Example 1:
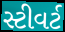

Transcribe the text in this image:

સ્ટીવર્ટ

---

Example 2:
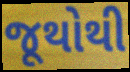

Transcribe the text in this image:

જૂથોથી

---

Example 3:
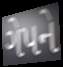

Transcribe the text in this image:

ગેપને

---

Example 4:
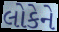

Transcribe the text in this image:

લોકેને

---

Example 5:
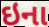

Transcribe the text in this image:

ઇના